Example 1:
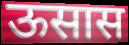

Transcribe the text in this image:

ऊसास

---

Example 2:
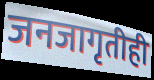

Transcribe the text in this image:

जनजागृतीही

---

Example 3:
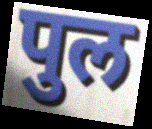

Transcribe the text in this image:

पुल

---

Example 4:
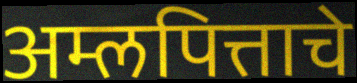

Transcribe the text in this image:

अम्लपित्ताचे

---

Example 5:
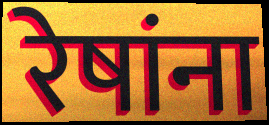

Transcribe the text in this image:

रेषांना